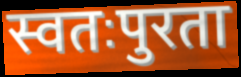
स्वतःपुरता